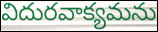
విదురవాక్యమను